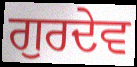
ਗੁਰਦੇਵ